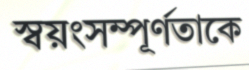
স্বয়ংসম্পূর্ণতাকে